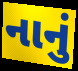
નાનું